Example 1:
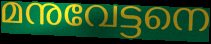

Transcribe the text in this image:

മനുവേട്ടനെ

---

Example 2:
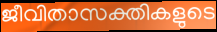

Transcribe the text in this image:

ജീവിതാസക്തികളുടെ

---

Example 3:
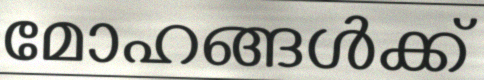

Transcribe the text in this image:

മോഹങ്ങൾക്ക്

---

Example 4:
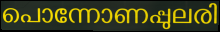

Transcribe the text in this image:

പൊന്നോണപ്പുലരി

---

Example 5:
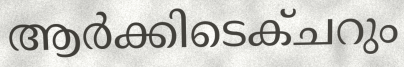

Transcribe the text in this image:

ആർക്കിടെക്ചറും